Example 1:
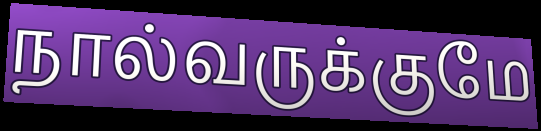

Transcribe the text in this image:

நால்வருக்குமே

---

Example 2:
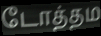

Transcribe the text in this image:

டோத்தம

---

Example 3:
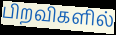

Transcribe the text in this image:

பிறவிகளில்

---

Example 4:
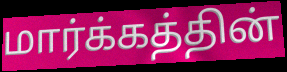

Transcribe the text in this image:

மார்க்கத்தின்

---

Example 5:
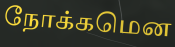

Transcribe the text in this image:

நோக்கமென